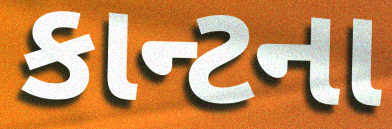
કાન્ટના